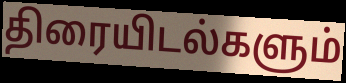
திரையிடல்களும்